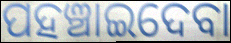
ପହଞ୍ଚାଇଦେବା